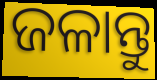
ଜଳାନ୍ତୁ